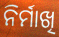
ନିର୍ମାଖି